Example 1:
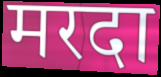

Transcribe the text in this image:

मरदा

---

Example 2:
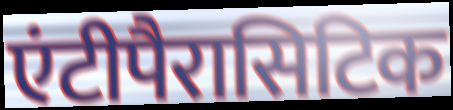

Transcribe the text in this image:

एंटीपैरासिटिक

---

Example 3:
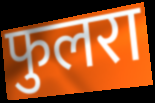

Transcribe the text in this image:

फुलरा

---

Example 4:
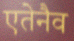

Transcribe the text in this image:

एतेनैव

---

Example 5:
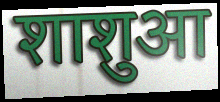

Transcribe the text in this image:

शाशुआ